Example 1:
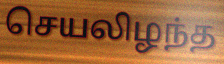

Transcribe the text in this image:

செயலிழந்த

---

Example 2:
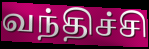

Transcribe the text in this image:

வந்திச்சி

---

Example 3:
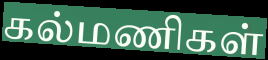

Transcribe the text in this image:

கல்மணிகள்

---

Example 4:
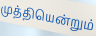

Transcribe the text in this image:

முத்தியென்றும்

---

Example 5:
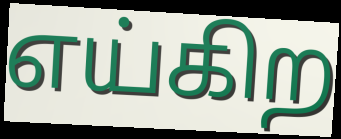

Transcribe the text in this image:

எய்கிற